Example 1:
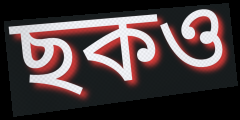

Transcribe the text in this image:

ছকও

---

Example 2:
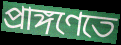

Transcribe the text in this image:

প্রাঙ্গণেতে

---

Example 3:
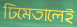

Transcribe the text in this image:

ঢিমেতালেই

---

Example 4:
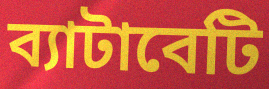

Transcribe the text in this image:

ব্যাটাবেটি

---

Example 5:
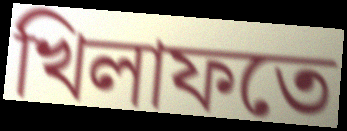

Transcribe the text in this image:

খিলাফতে